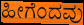
ಹೀಗೆಂದವು